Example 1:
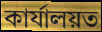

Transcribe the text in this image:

কাৰ্যালয়ত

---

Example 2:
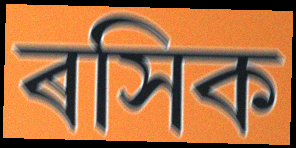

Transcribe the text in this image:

ৰসিক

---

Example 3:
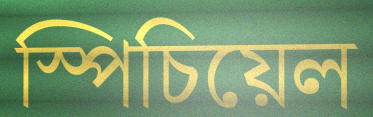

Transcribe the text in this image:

স্পিচিয়েল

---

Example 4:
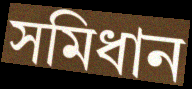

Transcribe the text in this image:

সমিধান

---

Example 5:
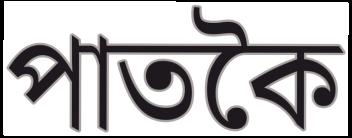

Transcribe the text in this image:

পাতকৈ